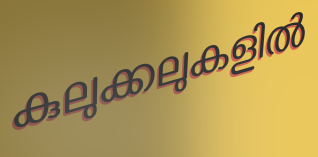
കുലുക്കലുകളിൽ